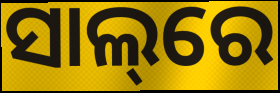
ସାଲ୍‌ରେ